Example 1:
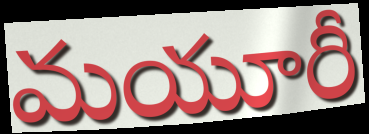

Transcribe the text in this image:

మయూరీ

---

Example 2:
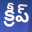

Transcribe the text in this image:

క్రీప్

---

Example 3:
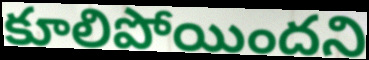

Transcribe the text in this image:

కూలిపోయిందని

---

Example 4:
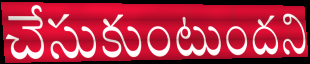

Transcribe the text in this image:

చేసుకుంటుందని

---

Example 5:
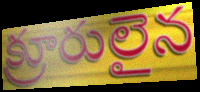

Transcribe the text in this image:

క్రూరులైన